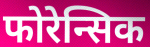
फोरेन्सिक